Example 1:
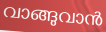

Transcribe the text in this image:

വാങ്ങുവാൻ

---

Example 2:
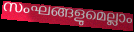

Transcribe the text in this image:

സംഘങ്ങളുമെല്ലാം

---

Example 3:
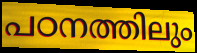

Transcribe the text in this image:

പഠനത്തിലും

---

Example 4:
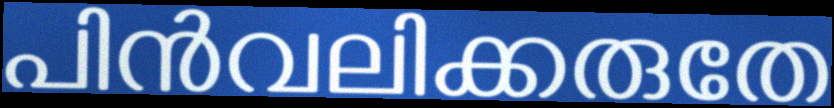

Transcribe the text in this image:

പിൻവലിക്കരുതേ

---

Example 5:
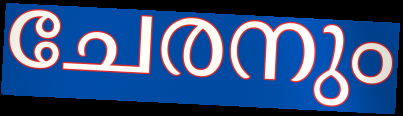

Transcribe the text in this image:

ചേരനും